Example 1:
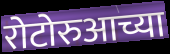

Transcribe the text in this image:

रोटोरुआच्या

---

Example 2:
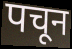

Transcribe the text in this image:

पचून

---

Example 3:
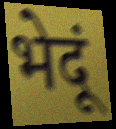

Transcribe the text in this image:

भेदूं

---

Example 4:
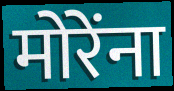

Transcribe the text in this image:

मोरेंना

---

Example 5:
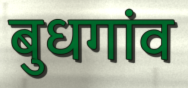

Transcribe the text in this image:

बुधगांव